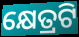
କ୍ଷେତ୍ରଟି